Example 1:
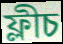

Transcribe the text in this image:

ফ্লীচ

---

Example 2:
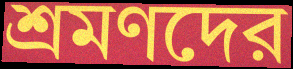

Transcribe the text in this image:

শ্রমণদের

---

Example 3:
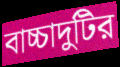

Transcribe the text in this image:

বাচ্চাদুটির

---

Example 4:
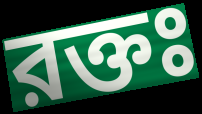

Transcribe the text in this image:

রক্তঃ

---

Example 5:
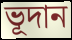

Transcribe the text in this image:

ভূদান